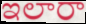
ఇలారా